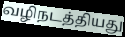
வழிநடத்தியது